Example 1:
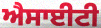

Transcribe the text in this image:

ਐਸਾਈਟੀ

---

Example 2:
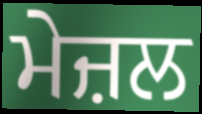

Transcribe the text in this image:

ਮੇਜ਼ਲ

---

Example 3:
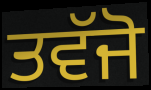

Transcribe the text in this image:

ਤਵੱਜੋ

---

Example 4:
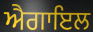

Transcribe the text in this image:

ਐਗਾਇਲ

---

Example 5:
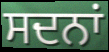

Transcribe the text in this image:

ਸਦਨਾਂ